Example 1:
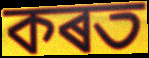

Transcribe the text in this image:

কৰত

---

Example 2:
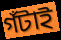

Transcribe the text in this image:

গঁটাই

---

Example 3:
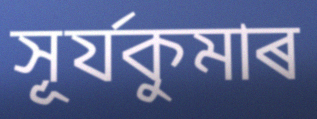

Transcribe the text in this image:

সূৰ্যকুমাৰ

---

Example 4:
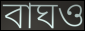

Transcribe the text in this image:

বাঘও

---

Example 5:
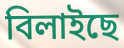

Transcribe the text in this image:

বিলাইছে